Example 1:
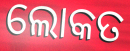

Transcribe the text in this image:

ଲୋକତ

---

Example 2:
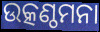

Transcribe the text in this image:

ଉତ୍କଣ୍ଠମନା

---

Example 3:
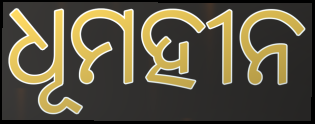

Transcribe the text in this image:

ଧୂମହୀନ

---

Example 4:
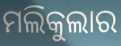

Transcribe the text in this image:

ମଲିକୁଲାର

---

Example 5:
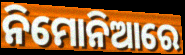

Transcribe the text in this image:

ନିମୋନିଆରେ